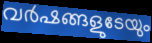
വർഷങ്ങളുടേയും